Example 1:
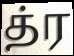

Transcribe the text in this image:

த்ர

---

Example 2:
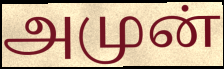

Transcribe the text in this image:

அமுன்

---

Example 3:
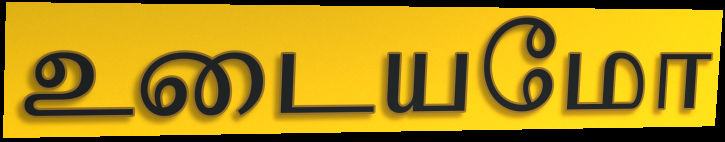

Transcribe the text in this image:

உடையமோ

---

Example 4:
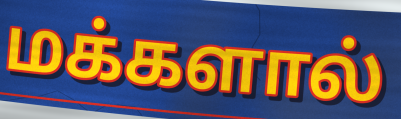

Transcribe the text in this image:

மக்களால்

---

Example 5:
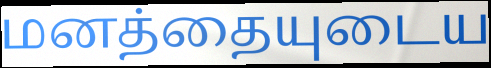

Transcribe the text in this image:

மனத்தையுடைய